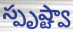
స్పృష్ట్వా